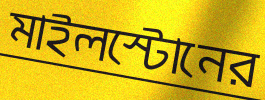
মাইলস্টোনের